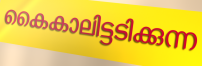
കൈകാലിട്ടടിക്കുന്ന